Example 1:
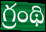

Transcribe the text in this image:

గ్రంథి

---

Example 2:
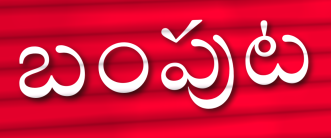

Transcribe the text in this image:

బంపుట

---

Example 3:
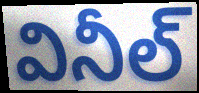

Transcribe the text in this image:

వినీల్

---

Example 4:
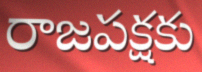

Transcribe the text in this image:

రాజపక్షకు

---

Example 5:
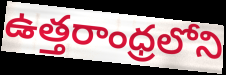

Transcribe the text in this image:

ఉత్తరాంధ్రలోని